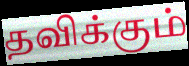
தவிக்கும்